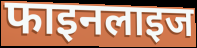
फाइनलाइज